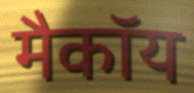
मैकॉय